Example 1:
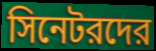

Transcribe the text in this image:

সিনেটরদের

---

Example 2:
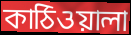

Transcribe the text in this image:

কাঠিওয়ালা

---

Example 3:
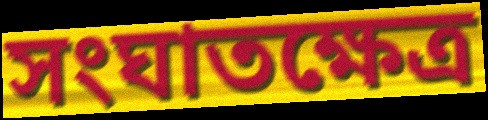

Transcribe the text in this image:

সংঘাতক্ষেত্র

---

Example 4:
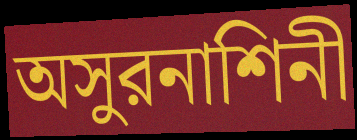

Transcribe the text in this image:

অসুরনাশিনী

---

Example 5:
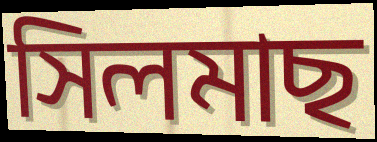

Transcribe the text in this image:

সিলমাছ